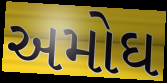
અમોઘ